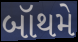
બૉથમે